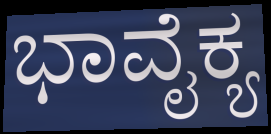
ಭಾವೈಕ್ಯ